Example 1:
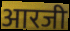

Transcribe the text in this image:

आरजी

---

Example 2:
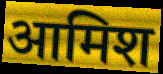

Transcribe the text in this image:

आमिश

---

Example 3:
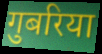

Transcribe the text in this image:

गुबरिया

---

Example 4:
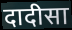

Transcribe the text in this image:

दादीसा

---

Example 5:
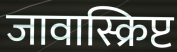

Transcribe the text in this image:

जावास्क्रिप्ट